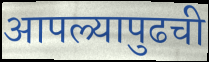
आपल्यापुढची